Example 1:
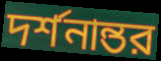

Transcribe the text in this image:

দর্শনান্তর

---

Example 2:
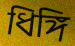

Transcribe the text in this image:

ধিঙ্গি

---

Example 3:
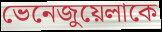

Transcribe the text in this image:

ভেনেজুয়েলাকে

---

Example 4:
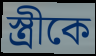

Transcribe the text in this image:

স্ত্রীকে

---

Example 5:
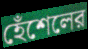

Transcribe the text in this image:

হেঁশেলের